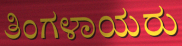
ತಿಂಗಳಾಯರು